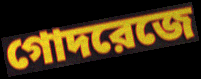
গোদরেজে